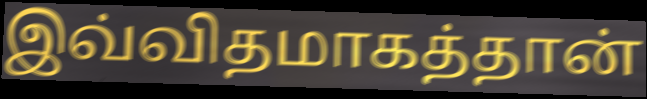
இவ்விதமாகத்தான்